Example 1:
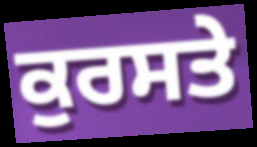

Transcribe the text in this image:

ਕੁਰਸਤੇ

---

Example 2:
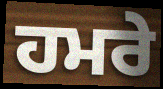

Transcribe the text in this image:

ਹਮਰੇ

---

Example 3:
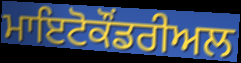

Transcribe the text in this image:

ਮਾਇਟੋਕੌਂਡਰੀਅਲ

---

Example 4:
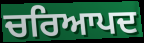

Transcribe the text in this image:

ਚਰਿਆਪਦ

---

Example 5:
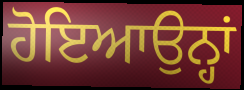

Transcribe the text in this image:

ਹੋਇਆਉਨ੍ਹਾਂ